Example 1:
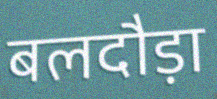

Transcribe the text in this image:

बलदौड़ा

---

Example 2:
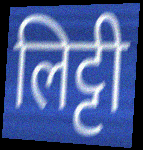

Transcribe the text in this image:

लिट्टी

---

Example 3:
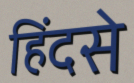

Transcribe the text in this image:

हिंदसे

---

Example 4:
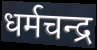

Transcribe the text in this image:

धर्मचन्द्र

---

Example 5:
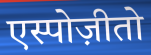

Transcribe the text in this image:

एस्पोज़ीतो